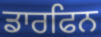
ਡਾਰਫਿਨ